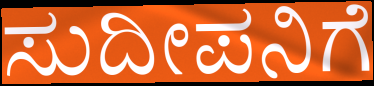
ಸುದೀಪನಿಗೆ